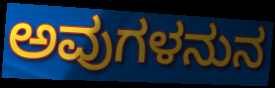
ಅವುಗಳನುನ